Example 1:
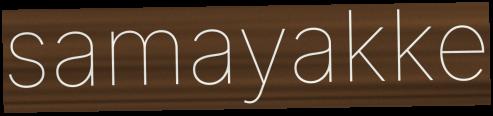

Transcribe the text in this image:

samayakke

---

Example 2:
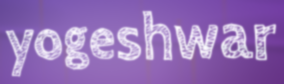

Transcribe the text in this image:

yogeshwar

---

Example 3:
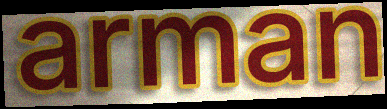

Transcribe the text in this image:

arman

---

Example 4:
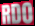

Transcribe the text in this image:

RDO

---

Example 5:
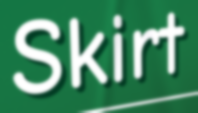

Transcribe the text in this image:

Skirt